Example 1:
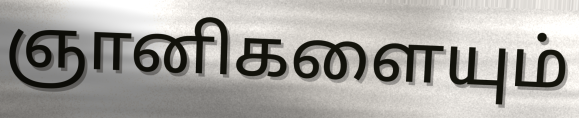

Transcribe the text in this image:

ஞானிகளையும்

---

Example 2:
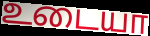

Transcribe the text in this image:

உடையா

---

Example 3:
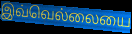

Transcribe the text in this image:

இவ்வெல்லையை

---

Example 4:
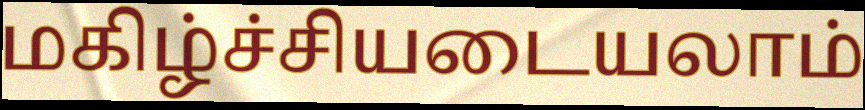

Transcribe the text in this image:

மகிழ்ச்சியடையலாம்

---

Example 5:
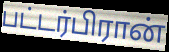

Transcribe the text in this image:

பட்டர்பிரான்